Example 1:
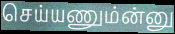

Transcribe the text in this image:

செய்யணும்ன்னு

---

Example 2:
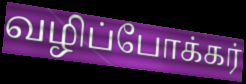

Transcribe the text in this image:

வழிப்போக்கர்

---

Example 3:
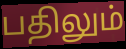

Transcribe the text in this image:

பதிலும்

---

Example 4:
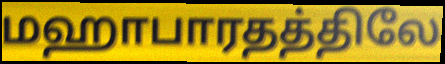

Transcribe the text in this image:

மஹாபாரதத்திலே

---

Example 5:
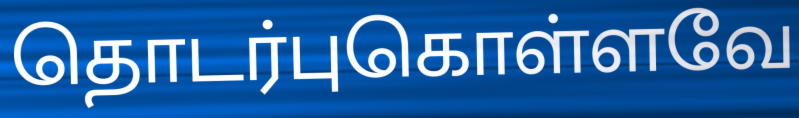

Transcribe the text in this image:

தொடர்புகொள்ளவே